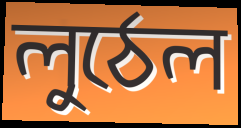
লুঠেল